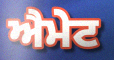
ਐਮੇਟ